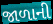
જાળાની